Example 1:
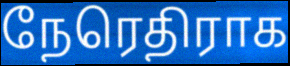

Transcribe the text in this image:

நேரெதிராக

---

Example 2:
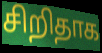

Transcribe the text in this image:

சிறிதாக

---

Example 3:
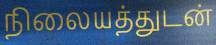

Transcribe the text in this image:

நிலையத்துடன்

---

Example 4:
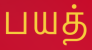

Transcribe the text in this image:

பயத்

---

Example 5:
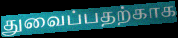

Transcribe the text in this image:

துவைப்பதற்காக